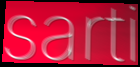
sarti